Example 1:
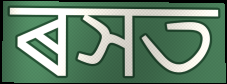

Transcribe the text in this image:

ৰসত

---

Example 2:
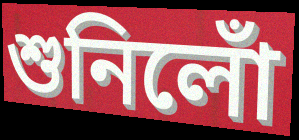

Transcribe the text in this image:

শুনিলোঁ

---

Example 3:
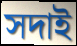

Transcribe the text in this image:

সদাই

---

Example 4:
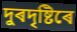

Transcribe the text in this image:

দুৰদৃষ্টিৰে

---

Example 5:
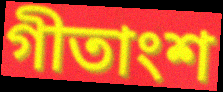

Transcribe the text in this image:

গীতাংশ